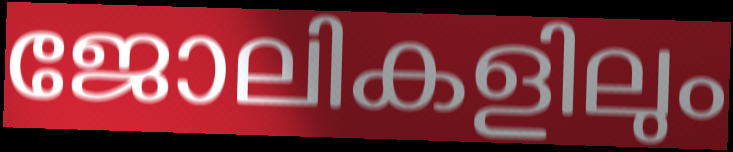
ജോലികളിലും